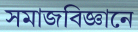
সমাজবিজ্ঞানে